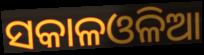
ସକାଳଓଳିଆ